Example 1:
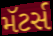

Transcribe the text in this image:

મૅટર્સ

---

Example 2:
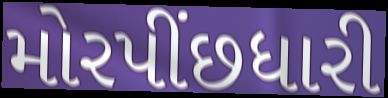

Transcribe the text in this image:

મોરપીંછધારી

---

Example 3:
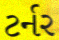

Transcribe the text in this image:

ટર્નર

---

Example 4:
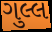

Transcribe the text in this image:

ગુલ્લ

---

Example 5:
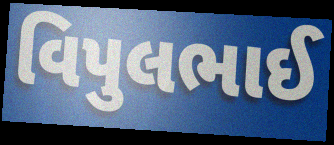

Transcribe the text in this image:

વિપુલભાઈ